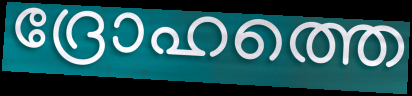
ദ്രോഹത്തെ